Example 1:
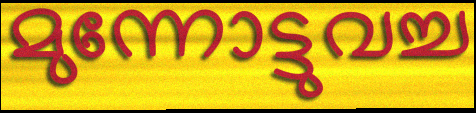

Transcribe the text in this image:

മുന്നോട്ടുവച്ച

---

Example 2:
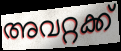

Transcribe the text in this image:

അവറ്റക്ക്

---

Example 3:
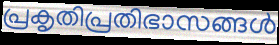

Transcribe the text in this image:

പ്രകൃതിപ്രതിഭാസങ്ങൾ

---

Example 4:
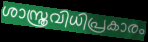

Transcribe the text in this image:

ശാസ്ത്രവിധിപ്രകാരം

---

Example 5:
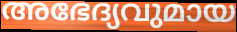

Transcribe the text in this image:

അഭേദ്യവുമായ